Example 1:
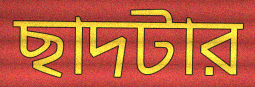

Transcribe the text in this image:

ছাদটার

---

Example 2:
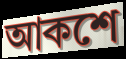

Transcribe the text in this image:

আকশে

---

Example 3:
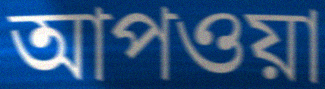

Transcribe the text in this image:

আপওয়া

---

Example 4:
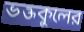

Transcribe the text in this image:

ভক্তকুলের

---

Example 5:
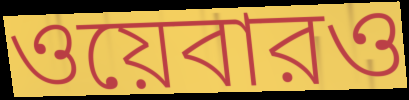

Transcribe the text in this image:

ওয়েবারও